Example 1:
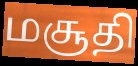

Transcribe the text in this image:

மசூதி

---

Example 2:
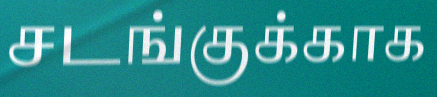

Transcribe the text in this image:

சடங்குக்காக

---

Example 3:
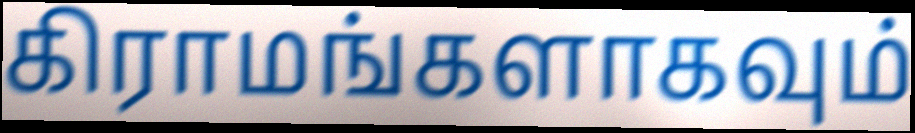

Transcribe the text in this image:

கிராமங்களாகவும்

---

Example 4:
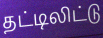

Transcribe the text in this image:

தட்டிலிட்டு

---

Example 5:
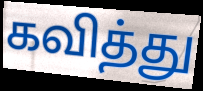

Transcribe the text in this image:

கவித்து